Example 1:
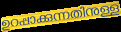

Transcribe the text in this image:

ഉറപ്പാക്കുന്നതിനുള്ള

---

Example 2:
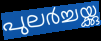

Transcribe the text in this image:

പുലർച്ചയ്ക്കു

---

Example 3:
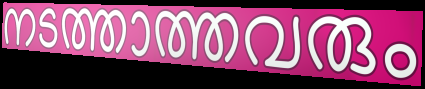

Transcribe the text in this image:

നടത്താത്തവരും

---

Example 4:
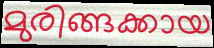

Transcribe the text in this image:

മുരിങ്ങക്കായ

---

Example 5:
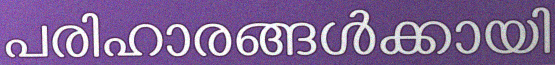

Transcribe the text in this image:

പരിഹാരങ്ങൾക്കായി